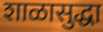
शाळासुद्धा